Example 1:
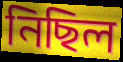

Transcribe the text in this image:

নিছিল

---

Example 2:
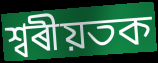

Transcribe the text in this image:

শ্বৰীয়তক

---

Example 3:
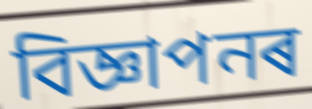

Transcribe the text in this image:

বিজ্ঞাপনৰ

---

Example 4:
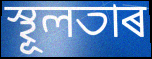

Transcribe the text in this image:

স্থূলতাৰ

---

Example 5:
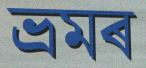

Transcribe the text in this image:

ভ্ৰমৰ